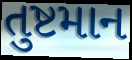
તુષ્ટમાન